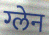
ग्लेन